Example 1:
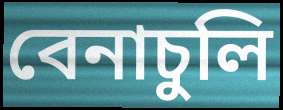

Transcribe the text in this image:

বেনাচুলি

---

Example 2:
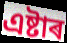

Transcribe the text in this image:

এষ্টাৰ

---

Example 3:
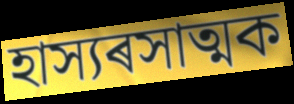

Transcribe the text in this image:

হাস্যৰসাত্মক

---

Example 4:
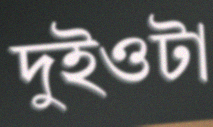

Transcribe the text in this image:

দুইওটা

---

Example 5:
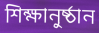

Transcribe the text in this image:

শিক্ষানুষ্ঠান